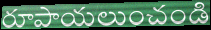
రూపాయలుంచండి